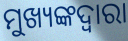
ମୁଖ୍ୟଙ୍କଦ୍ଵାରା